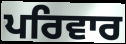
ਪਰਿਵਾਰ